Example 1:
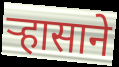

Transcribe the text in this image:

ऱ्हासाने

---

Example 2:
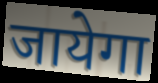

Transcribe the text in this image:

जायेगा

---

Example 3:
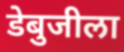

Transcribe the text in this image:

डेबुजीला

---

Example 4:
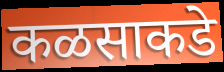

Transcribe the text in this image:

कळसाकडे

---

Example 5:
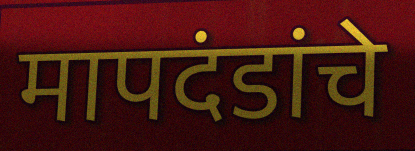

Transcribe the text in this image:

मापदंडांचे